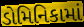
ડોમિનિકામાં